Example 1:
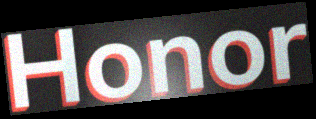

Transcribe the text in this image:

Honor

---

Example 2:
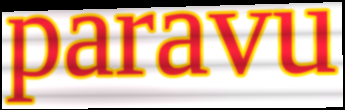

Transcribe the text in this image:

paravu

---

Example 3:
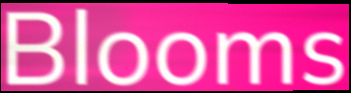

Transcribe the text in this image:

Blooms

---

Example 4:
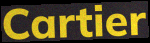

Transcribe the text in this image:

Cartier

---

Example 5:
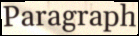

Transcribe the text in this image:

Paragraph